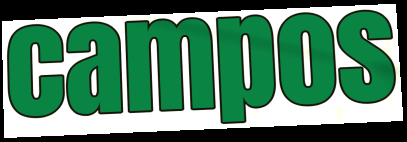
campos